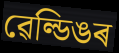
ৱেল্ডিঙৰ